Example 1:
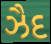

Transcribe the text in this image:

ઝૈદ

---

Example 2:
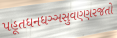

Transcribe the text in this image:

પહૂતધનધઞ્ઞસુવણ્ણરજતો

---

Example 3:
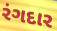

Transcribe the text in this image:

રંગદાર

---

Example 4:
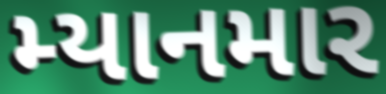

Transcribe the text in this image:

મ્યાનમાર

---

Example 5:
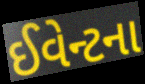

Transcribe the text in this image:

ઈવેન્ટના